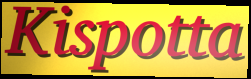
Kispotta